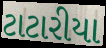
ટાટારીયા